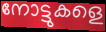
നോട്ടുകളെ